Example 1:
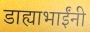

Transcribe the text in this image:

डाह्याभाईंनी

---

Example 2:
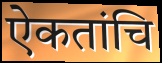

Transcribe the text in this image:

ऐकतांचि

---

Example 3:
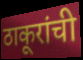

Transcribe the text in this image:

ठाकूरांची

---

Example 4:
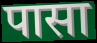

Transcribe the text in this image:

पासा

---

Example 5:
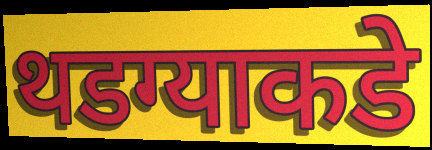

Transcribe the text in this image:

थडग्याकडे